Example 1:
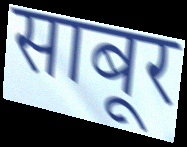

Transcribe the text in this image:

साबूर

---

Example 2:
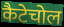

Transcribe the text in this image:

कैटेचोल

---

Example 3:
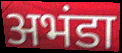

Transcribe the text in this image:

अभंडा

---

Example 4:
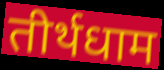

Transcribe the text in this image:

तीर्थधाम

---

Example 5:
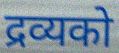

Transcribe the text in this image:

द्रव्यको